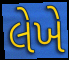
લેખે